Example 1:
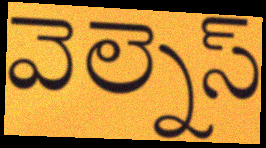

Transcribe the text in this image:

వెల్నెస్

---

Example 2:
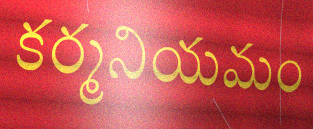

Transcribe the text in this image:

కర్మనియమం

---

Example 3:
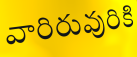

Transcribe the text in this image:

వారిరువురికి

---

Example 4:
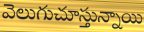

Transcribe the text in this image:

వెలుగుచూస్తున్నాయి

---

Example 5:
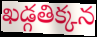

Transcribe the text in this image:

ఖడ్గతిక్కన